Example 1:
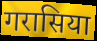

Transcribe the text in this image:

गरासिया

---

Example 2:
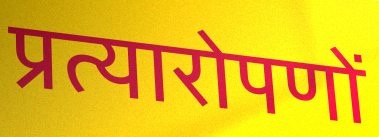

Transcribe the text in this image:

प्रत्यारोपणों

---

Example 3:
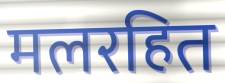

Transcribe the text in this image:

मलरहित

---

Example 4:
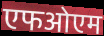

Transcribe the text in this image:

एफओएम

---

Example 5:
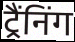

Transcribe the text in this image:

ट्रैंनिंग